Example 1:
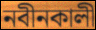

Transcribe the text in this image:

নবীনকালী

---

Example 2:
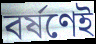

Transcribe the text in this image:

বর্ষণেই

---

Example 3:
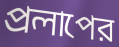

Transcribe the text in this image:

প্রলাপের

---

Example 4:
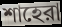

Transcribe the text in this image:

শাহেরা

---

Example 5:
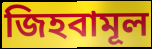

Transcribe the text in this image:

জিহবামূল